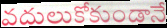
వదులుకోకుండానే